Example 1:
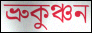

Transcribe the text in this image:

ভ্রুকুঞ্চন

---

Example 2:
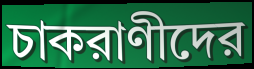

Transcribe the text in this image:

চাকরাণীদের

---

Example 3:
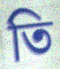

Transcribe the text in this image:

তি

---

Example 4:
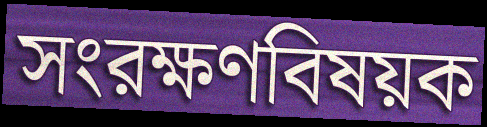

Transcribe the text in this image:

সংরক্ষণবিষয়ক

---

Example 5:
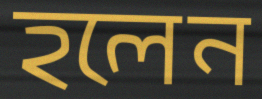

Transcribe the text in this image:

হলেন